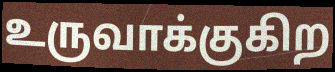
உருவாக்குகிற